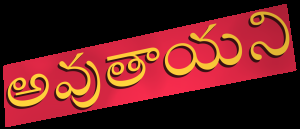
అవుతాయని